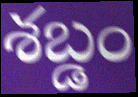
శబ్డం